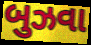
બુઝવા